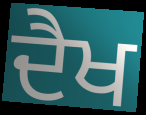
ਦੈਖ